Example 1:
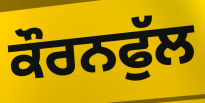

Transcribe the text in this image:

ਕੌਰਨਫੁੱਲ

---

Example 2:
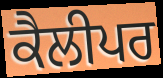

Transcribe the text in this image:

ਕੈਲੀਪਰ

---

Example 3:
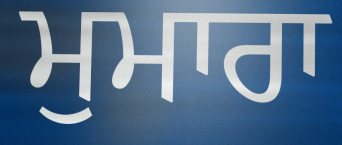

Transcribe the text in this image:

ਮੁਮਾਰਾ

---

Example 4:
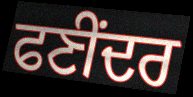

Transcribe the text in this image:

ਫਣੀਂਦਰ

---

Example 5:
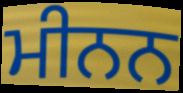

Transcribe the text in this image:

ਮੀਨਨ